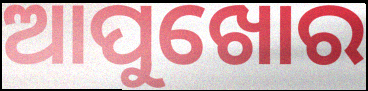
ଆପୁଖୋର